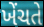
ખેંચતે